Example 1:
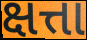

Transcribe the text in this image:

ક્ષત્તા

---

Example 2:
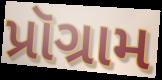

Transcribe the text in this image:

પ્રૉગ્રામ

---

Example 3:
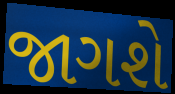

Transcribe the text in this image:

જાગશે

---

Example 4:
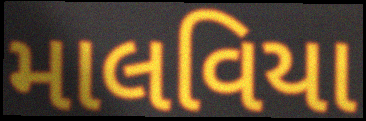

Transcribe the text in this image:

માલવિયા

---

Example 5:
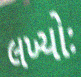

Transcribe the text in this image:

લખ્યોઃ